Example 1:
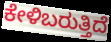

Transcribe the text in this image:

ಕೇಳಿಬರುತ್ತಿದೆ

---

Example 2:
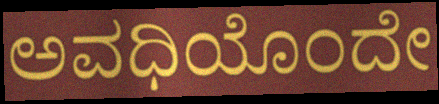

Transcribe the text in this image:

ಅವಧಿಯೊಂದೇ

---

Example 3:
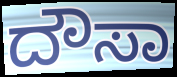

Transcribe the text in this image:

ದೌಸಾ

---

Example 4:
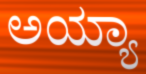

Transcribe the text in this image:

ಅಯ್ಯಾ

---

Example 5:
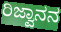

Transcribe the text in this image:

ರಿಜ್ವಾನನ